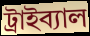
ট্রাইব্যাল